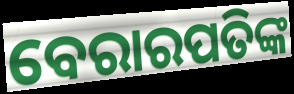
ବେରାରପତିଙ୍କ